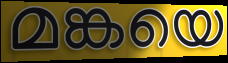
മങ്കയെ